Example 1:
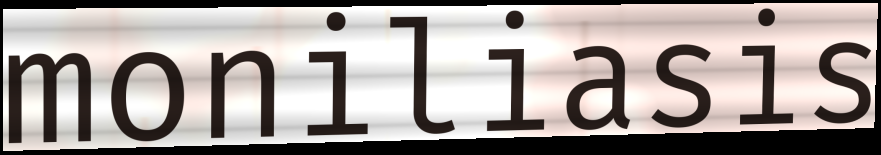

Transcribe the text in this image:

moniliasis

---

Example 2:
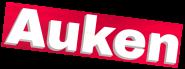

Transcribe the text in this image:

Auken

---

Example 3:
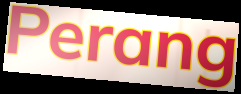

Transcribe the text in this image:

Perang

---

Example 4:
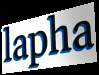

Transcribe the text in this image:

lapha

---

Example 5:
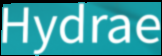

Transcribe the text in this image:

Hydrae